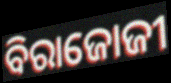
ବିରାଜୋଜୀ